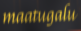
maatugalu